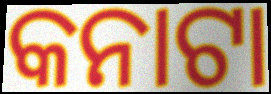
କନାଟା